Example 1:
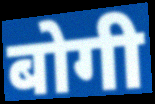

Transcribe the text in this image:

बोगी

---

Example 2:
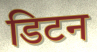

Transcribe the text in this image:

डिटन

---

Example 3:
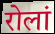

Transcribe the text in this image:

रोलां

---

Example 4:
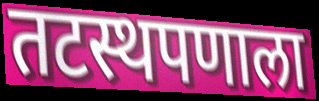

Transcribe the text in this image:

तटस्थपणाला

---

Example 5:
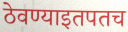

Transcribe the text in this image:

ठेवण्याइतपतच